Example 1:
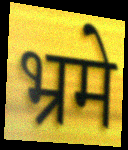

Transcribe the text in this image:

भ्रमे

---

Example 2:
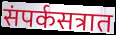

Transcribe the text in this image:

संपर्कसत्रात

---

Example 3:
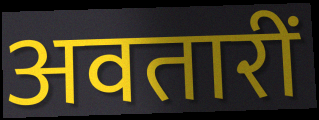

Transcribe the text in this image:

अवतारीं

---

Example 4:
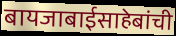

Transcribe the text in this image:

बायजाबाईसाहेबांची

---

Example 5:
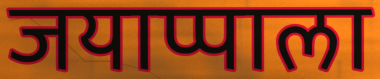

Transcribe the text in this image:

जयाप्पाला